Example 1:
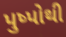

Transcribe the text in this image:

પુષ્પોથી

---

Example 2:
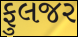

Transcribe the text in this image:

ફુલજર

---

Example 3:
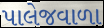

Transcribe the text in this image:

પાલેજવાળા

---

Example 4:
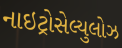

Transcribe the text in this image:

નાઇટ્રોસેલ્યુલોઝ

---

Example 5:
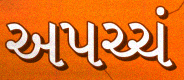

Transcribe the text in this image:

અપચ્ચં